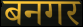
बनगर